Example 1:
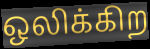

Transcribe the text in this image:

ஒலிக்கிற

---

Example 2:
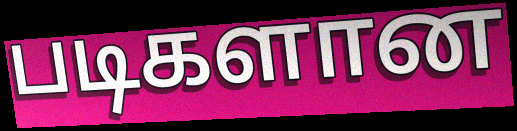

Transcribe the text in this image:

படிகளான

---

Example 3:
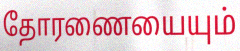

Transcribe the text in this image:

தோரணையையும்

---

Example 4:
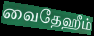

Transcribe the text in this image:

வைதேஹீம்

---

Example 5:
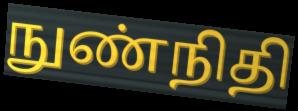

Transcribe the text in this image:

நுண்நிதி